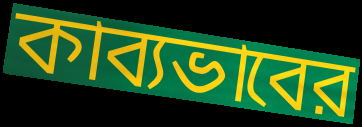
কাব্যভাবের